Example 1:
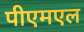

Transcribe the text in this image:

पीएमएल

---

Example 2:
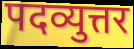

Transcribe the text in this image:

पदव्युत्तर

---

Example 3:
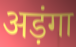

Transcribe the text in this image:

अड़ंगा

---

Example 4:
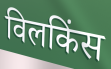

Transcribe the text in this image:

विलकिंस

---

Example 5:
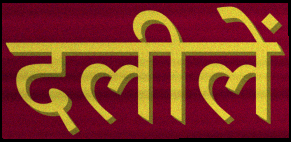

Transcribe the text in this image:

दलीलें